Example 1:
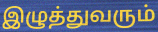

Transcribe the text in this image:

இழுத்துவரும்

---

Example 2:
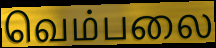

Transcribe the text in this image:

வெம்பலை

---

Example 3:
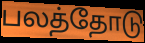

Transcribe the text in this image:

பலத்தோடு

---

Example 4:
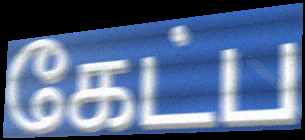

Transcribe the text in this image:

கேட்ப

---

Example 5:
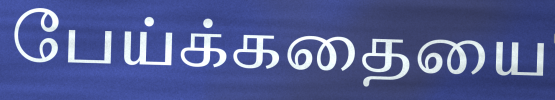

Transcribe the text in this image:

பேய்க்கதையை